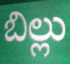
బిల్లు